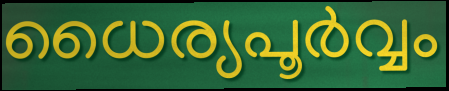
ധൈര്യപൂർവ്വം